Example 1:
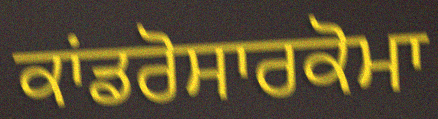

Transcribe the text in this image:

ਕਾਂਡਰੋਸਾਰਕੋਮਾ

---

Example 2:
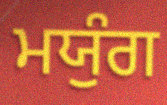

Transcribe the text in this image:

ਮਯੁੰਗ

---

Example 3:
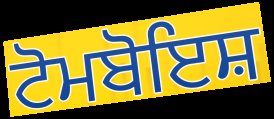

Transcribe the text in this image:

ਟੋਮਬੋਇਸ਼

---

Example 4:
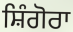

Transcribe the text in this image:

ਸ਼ਿੰਗੋਰਾ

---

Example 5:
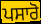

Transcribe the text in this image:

ਪਸਾਰੋ